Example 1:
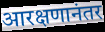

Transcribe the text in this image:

आरक्षणानंतर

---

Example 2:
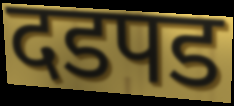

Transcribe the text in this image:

दडपड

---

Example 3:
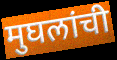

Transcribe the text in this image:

मुघलांची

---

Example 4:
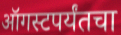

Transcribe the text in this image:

ऑगस्टपर्यंतचा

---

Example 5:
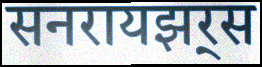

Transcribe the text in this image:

सनरायझर्स